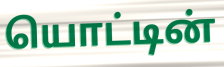
யொட்டின்